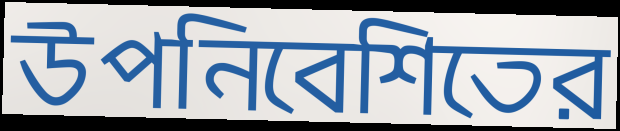
উপনিবেশিতের